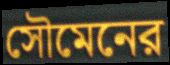
সৌমেনের